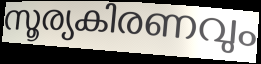
സൂര്യകിരണവും